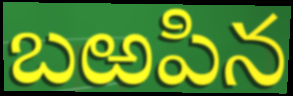
బఱపిన